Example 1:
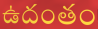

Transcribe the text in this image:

ఉదంతం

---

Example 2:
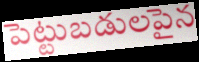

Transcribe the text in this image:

పెట్టుబడులపైన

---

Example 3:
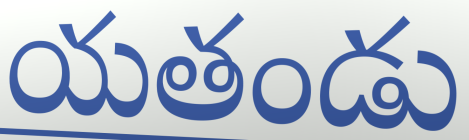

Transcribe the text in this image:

యతండు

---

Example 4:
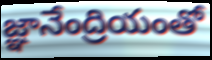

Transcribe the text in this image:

జ్ఞానేంద్రియంతో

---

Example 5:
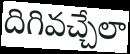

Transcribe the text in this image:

దిగివచ్చేలా